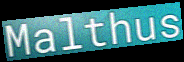
Malthus